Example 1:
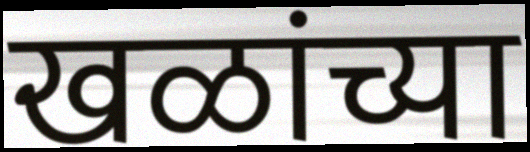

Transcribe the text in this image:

खळांच्या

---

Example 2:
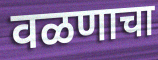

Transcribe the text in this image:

वळणाचा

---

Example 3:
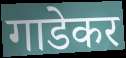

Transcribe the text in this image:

गाडेकर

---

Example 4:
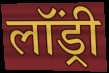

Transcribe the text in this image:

लॉंड्री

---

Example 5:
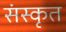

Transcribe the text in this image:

संस्कृत